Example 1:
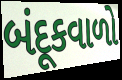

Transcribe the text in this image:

બંદૂકવાળો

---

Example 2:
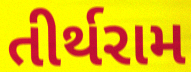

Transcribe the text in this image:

તીર્થરામ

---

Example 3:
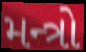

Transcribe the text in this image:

મન્ત્રો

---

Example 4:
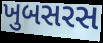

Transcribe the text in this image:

ખુબસરસ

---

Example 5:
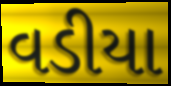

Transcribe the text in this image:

વડીયા